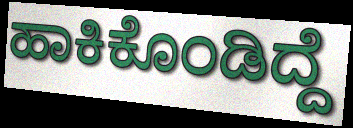
ಹಾಕಿಕೊಂಡಿದ್ದೆ